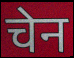
चेन